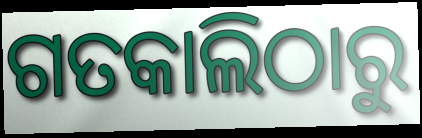
ଗତକାଲିଠାରୁ